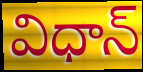
విధాన్